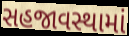
સહજાવસ્થામાં